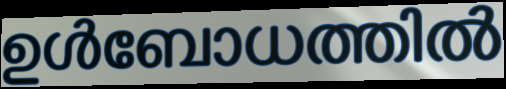
ഉൾബോധത്തിൽ